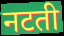
नटती